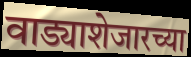
वाड्याशेजारच्या